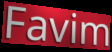
Favim